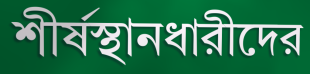
শীর্ষস্থানধারীদের